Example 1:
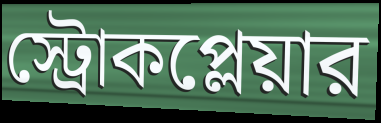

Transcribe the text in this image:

স্ট্রোকপ্লেয়ার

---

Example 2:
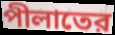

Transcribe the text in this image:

পীলাতের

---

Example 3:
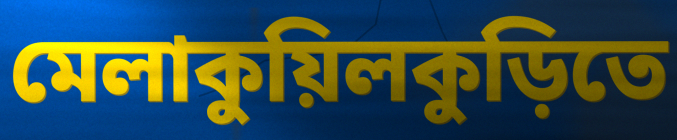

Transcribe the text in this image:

মেলাকুয়িলকুড়িতে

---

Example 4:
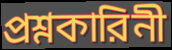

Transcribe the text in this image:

প্রশ্নকারিনী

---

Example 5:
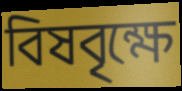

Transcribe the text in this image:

বিষবৃক্ষে